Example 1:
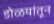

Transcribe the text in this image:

डोळयांतून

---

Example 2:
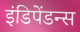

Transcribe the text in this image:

इंडिपेंडन्स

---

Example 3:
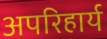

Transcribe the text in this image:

अपरिहार्य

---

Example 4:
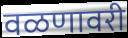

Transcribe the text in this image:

वळणावरी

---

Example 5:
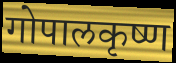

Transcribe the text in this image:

गोपालकृष्ण